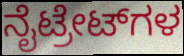
ನೈಟ್ರೇಟ್‌ಗಳ